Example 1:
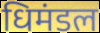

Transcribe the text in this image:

धिमंडल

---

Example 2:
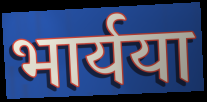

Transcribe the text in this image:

भार्यया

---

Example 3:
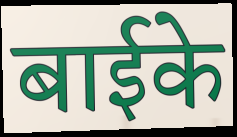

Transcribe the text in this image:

बाईके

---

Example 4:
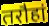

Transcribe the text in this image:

तरौहां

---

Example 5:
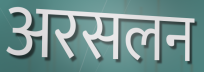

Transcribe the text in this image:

अरसलन